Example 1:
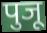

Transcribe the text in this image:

पुजू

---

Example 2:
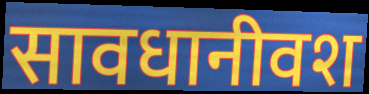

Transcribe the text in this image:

सावधानीवश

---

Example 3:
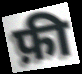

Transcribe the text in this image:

फ़ी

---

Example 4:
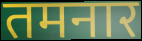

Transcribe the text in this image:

तमनार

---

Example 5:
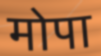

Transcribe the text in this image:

मोपा